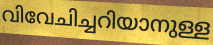
വിവേചിച്ചറിയാനുള്ള